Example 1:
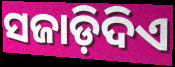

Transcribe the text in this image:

ସଜାଡ଼ିଦିଏ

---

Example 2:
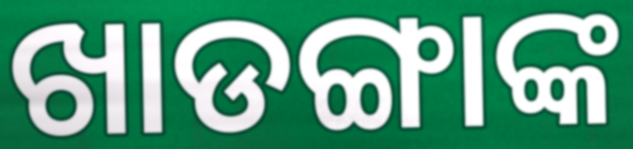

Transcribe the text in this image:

ଖାଡଙ୍ଗାଙ୍କ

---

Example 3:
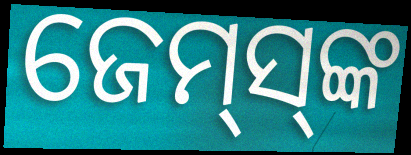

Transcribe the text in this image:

ଜେମ୍‌ସ୍‌ଙ୍କ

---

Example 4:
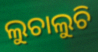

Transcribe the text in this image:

ଲୁଚାଲୁଚି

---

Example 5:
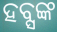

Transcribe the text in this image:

ହବ୍ସଙ୍କ